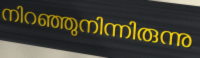
നിറഞ്ഞുനിന്നിരുന്നു